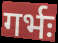
गर्भः